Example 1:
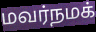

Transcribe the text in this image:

மவர்நமக்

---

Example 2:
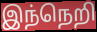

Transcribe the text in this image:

இந்நெறி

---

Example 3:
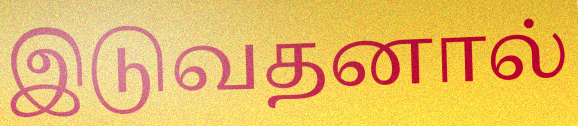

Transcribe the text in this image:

இடுவதனால்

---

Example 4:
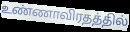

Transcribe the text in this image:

உண்ணாவிரதத்தில்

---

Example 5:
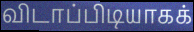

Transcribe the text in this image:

விடாப்பிடியாகக்